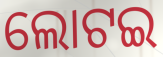
ଲୋଟଇ